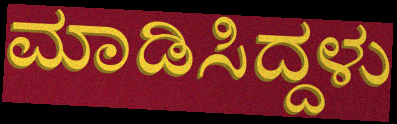
ಮಾಡಿಸಿದ್ದಳು